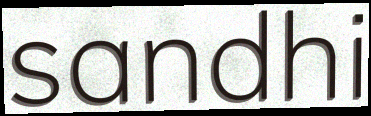
sandhi